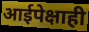
आईपेक्षाही